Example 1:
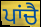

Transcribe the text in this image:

ਪਾਂਚੈ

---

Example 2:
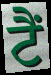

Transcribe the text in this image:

ਟੈੰ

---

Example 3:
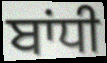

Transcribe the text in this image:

ਬਾਂਧੀ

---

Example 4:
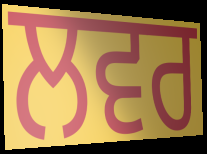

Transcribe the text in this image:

ਲਵਰ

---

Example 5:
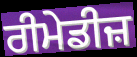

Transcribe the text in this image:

ਰੀਮੇਡੀਜ਼